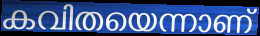
കവിതയെന്നാണ്